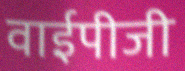
वाईपीजी